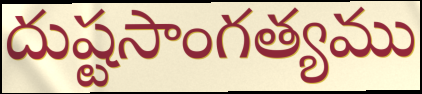
దుష్టసాంగత్యము